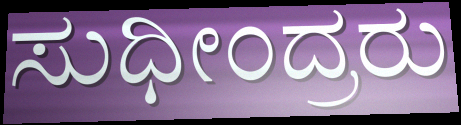
ಸುಧೀಂದ್ರರು